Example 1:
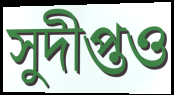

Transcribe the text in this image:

সুদীপ্তও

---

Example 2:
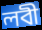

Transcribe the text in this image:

লবী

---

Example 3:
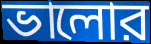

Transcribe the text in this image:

ভালোর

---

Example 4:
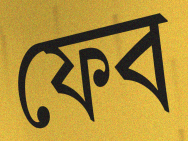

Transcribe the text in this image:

ফেব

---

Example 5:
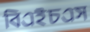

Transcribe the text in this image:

বিএইচএস